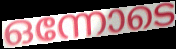
ഒന്നോടെ